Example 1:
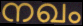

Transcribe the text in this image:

നഖം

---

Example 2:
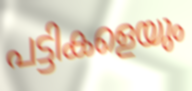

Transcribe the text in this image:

പട്ടികളെയും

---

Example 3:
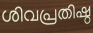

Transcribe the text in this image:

ശിവപ്രതിഷ്ഠ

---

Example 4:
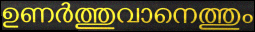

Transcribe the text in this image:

ഉണർത്തുവാനെത്തും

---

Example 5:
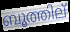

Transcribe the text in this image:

ബൂത്തില്